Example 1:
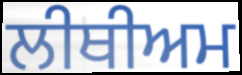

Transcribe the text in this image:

ਲੀਥੀਅਮ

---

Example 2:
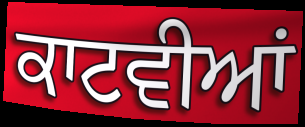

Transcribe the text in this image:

ਕਾਟਵੀਆਂ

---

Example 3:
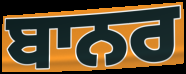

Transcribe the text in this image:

ਬਾਨਰ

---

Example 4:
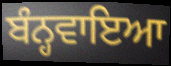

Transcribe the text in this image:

ਬੰਨ੍ਹਵਾਇਆ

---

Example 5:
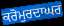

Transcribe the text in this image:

ਕਰੋਮੁਰਦਾਘਰ